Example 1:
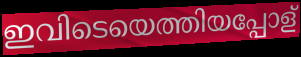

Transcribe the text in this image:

ഇവിടെയെത്തിയപ്പോള്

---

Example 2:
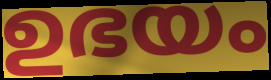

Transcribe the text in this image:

ഉഭയം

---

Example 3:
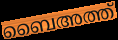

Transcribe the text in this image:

ബൈഅത്ത്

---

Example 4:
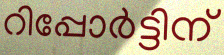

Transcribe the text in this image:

റിപ്പോർട്ടിന്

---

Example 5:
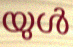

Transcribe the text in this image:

യുൾ